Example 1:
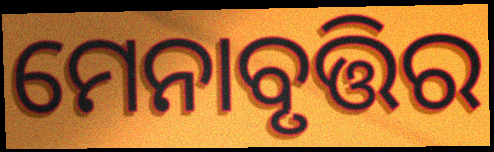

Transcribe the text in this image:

ମେନାବୃତ୍ତିର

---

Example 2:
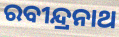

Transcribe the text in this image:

ରବୀନ୍ଦ୍ରନାଥ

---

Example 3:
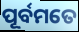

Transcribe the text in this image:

ପୂର୍ବମତେ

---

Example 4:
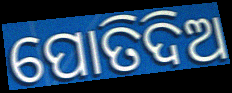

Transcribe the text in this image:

ପୋତିଦିଅ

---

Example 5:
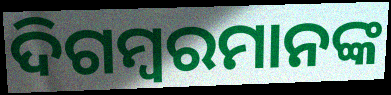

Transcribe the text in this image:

ଦିଗମ୍ବରମାନଙ୍କ